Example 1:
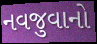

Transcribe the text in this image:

નવજુવાનો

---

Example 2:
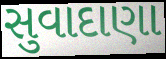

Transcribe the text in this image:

સુવાદાણા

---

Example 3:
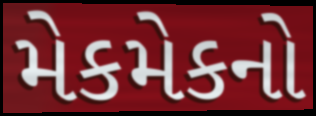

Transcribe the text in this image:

મેકમેકનો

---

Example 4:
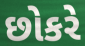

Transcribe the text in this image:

છોકરે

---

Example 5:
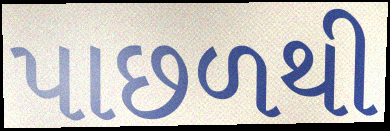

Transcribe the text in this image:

પાછળથી